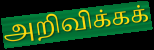
அறிவிக்கக்